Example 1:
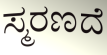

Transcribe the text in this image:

ಸ್ಮರಣದೆ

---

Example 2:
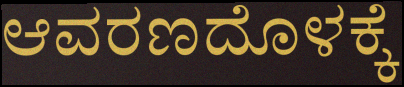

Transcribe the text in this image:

ಆವರಣದೊಳಕ್ಕೆ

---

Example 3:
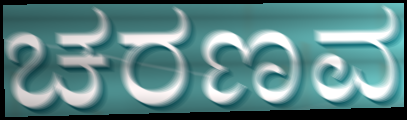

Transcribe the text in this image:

ಚರಣವ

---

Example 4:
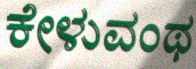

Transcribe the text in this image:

ಕೇಳುವಂಥ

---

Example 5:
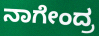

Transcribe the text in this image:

ನಾಗೇಂದ್ರ